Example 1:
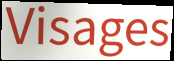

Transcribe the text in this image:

Visages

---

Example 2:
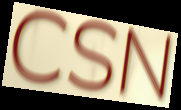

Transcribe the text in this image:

CSN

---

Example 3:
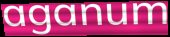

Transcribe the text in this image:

aganum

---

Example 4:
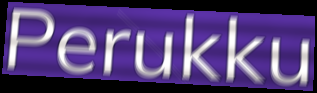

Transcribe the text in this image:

Perukku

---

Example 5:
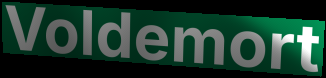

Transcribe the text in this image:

Voldemort